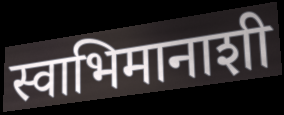
स्वाभिमानाशी